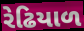
રેઢિયાળ